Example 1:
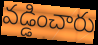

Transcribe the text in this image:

వడ్డించారు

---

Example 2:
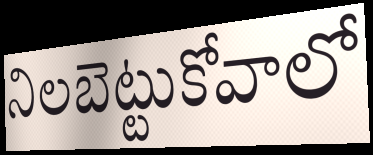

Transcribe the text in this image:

నిలబెట్టుకోవాలో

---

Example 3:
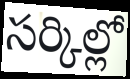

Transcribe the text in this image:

సర్కిల్లో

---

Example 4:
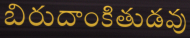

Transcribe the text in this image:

బిరుదాంకితుడవు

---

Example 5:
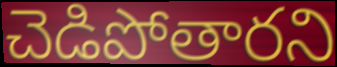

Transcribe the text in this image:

చెడిపోతారని